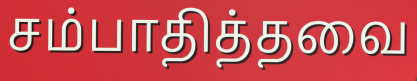
சம்பாதித்தவை